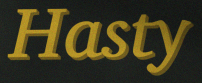
Hasty